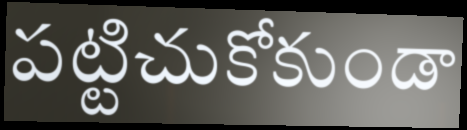
పట్టిచుకోకుండా